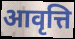
आवृत्ति